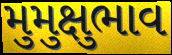
મુમુક્ષુભાવ